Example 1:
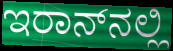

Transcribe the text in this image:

ಇರಾನ್‌ನಲ್ಲಿ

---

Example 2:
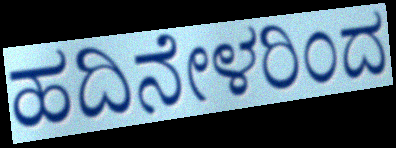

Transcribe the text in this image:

ಹದಿನೇಳರಿಂದ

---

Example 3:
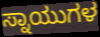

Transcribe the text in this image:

ಸ್ನಾಯುಗಳ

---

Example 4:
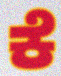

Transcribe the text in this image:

ಕೆ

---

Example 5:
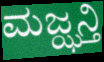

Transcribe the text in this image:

ಮಜ್ಝನ್ತಿ